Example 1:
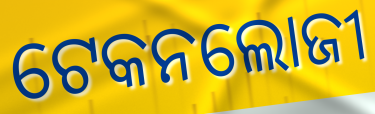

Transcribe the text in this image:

ଟେକନଲୋଜୀ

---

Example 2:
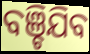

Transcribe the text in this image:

ବଞ୍ଚିଯିବ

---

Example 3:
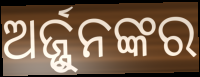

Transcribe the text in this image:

ଅର୍ଜ୍ଜୁନଙ୍କର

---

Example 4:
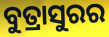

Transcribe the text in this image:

ବୁତ୍ରାସୁରର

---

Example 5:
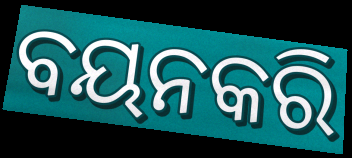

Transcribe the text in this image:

ବୟନକରି